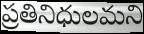
ప్రతినిధులమని